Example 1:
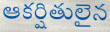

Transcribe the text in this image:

ఆకర్షితులైన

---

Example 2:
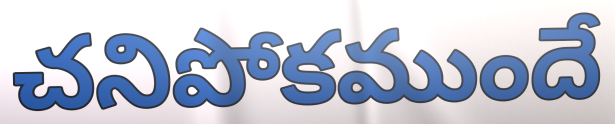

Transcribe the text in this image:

చనిపోకముందే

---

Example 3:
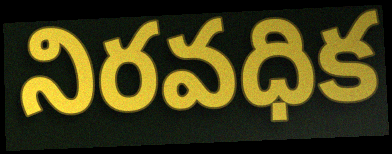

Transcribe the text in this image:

నిరవధిక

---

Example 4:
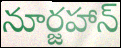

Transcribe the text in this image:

నూర్జహాన్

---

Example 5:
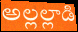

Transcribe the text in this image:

అల్లల్లాడి